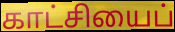
காட்சியைப்